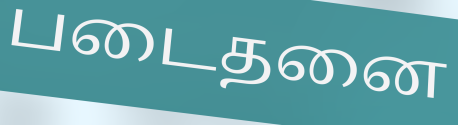
படைதனை